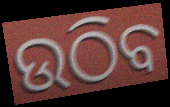
ଉଠିବ